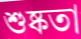
শুষ্কতা